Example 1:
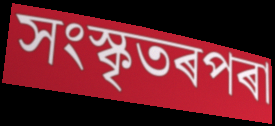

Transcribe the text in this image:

সংস্কৃতৰপৰা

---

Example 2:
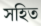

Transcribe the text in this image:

সহিত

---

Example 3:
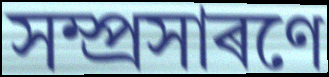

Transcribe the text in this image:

সম্প্ৰসাৰণে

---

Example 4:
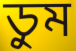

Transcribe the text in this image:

ডুম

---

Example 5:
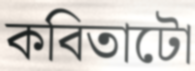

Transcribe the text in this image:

কবিতাটো